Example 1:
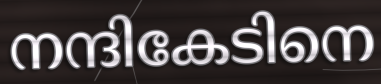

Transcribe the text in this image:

നന്ദികേടിനെ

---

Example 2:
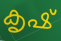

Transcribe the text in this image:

കൃഷ്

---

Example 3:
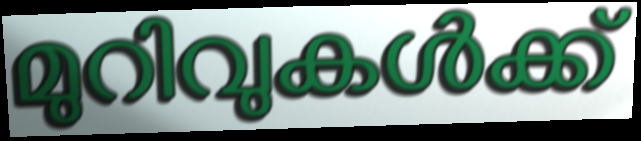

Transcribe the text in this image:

മുറിവുകൾക്ക്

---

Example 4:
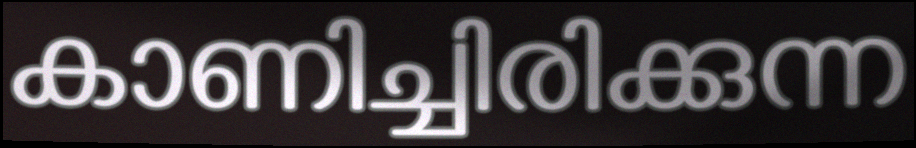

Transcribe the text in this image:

കാണിച്ചിരിക്കുന്ന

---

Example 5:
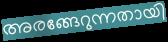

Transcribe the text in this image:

അരങ്ങേറുന്നതായി